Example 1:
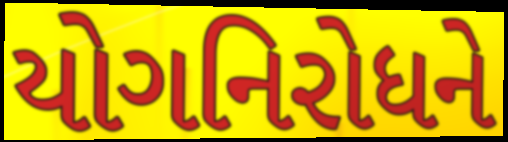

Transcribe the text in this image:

યોગનિરોધને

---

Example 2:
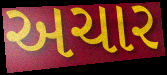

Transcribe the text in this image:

અચાર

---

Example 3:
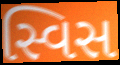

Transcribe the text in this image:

સ્વિસ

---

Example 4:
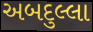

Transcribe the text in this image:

અબદુલ્લા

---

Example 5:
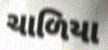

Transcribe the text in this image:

ચાળિયા